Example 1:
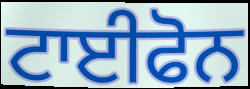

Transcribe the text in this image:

ਟਾਈਫੋਨ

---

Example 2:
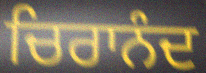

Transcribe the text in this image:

ਚਿਰਾਨੰਦ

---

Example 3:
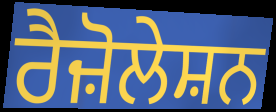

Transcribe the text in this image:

ਰੈਜ਼ੋਲੇਸ਼ਨ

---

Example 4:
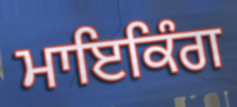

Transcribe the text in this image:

ਮਾਇਕਿੰਗ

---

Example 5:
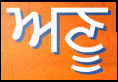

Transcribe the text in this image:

ਅਣੂ